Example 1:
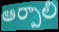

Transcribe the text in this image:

ఆర్పాలి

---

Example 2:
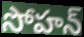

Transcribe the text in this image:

సోహన్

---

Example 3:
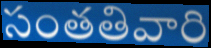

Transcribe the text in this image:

సంతతివారి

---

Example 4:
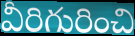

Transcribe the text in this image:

వీరిగురించి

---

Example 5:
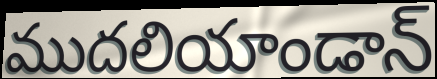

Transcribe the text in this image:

ముదలియాండాన్